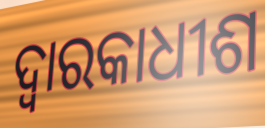
ଦ୍ୱାରକାଧୀଶ